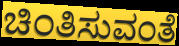
ಚಿಂತಿಸುವಂತೆ